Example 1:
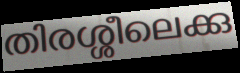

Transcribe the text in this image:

തിരശ്ശീലെക്കു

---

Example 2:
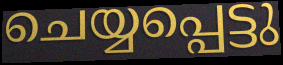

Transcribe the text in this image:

ചെയ്യപ്പെട്ടു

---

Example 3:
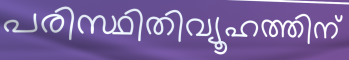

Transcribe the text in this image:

പരിസ്ഥിതിവ്യൂഹത്തിന്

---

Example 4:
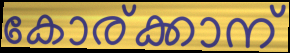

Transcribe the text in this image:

കോര്ക്കാന്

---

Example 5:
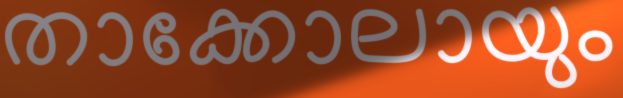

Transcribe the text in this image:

താക്കോലായും